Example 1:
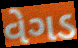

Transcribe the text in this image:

વેગડ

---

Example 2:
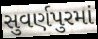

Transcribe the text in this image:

સુવર્ણપુરમાં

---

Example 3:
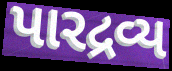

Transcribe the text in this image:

પારદ્રવ્ય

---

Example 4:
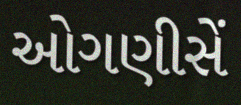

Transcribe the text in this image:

ઓગણીસેં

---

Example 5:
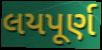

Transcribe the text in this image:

લયપૂર્ણ